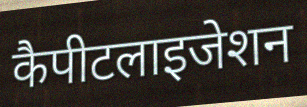
कैपीटलाइजेशन